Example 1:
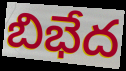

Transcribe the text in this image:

బిభేద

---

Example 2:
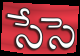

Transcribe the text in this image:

సేసె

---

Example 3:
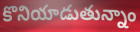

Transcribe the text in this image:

కొనియాడుతున్నాం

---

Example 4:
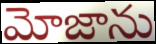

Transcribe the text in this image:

మోజాను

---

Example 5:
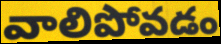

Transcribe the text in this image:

వాలిపోవడం